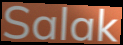
Salak